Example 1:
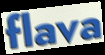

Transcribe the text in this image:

flava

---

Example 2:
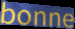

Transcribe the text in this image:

bonne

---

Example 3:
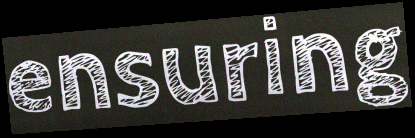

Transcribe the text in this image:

ensuring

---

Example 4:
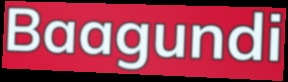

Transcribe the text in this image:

Baagundi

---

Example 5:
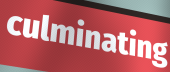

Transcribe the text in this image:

culminating